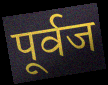
पूर्वज